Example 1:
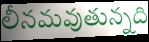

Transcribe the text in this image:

లీనమవుతున్నది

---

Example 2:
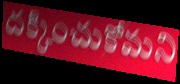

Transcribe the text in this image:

దక్కించుకోమని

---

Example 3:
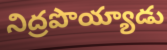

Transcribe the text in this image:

నిద్రపొయ్యాడు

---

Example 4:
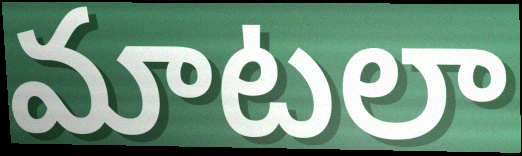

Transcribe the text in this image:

మాటలా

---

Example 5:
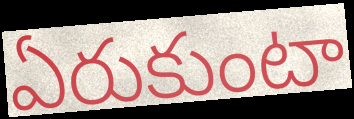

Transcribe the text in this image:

ఏరుకుంటా